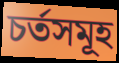
চৰ্তসমূহ